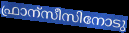
ഫ്രാന്സീസിനോടു